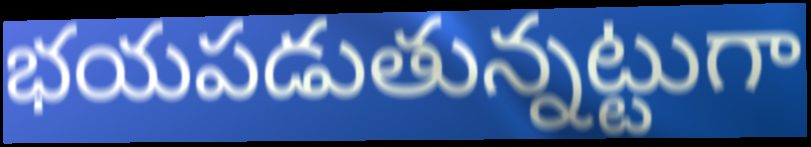
భయపడుతున్నట్టుగా